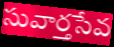
సువార్తసేవ